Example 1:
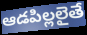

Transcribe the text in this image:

ఆడపిల్లలైతే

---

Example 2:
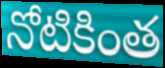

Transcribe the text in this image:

నోటికింత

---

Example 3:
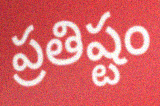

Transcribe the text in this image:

ప్రతిష్టం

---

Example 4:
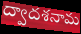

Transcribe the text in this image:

ద్వాదశనామ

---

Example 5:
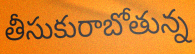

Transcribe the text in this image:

తీసుకురాబోతున్న